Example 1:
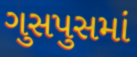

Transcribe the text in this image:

ગુસપુસમાં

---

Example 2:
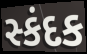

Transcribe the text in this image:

સ્કંદક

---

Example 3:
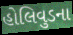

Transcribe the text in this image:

હોલિવુડના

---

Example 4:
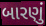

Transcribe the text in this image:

બારણું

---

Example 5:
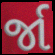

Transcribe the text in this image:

ર્જા